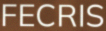
FECRIS